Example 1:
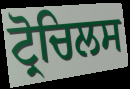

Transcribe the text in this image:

ਟ੍ਰੋਚਿਲਸ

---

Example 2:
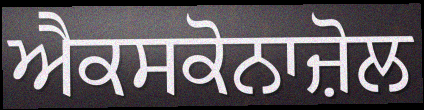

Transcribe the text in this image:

ਐਕਸਕੋਨਾਜ਼ੋਲ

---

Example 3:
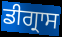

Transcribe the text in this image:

ਡੀਗ੍ਰਾਸ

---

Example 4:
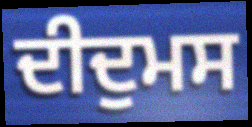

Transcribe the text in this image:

ਦੀਦੁਮਸ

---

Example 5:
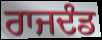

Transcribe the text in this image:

ਰਾਜਦੰਡ